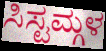
ಸಿಸ್ಟಮ್ಗಳ